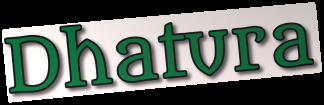
Dhatura